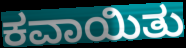
ಕವಾಯಿತು